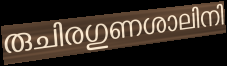
രുചിരഗുണശാലിനി